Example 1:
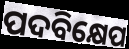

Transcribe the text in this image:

ପଦବିକ୍ଷେପ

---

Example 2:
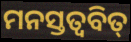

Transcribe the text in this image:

ମନସ୍ତତ୍ଵବିତ୍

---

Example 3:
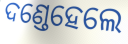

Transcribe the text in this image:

ଦଣ୍ଡେହେଲେ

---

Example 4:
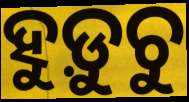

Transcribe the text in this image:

ହୁଡ଼ୁଚୁ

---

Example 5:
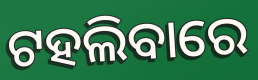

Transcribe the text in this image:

ଟହଲିବାରେ